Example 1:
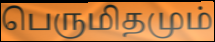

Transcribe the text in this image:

பெருமிதமும்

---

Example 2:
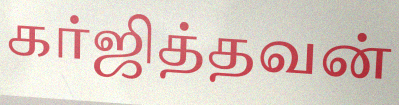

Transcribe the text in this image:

கர்ஜித்தவன்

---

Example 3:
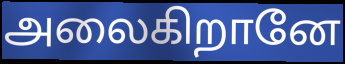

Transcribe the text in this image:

அலைகிறானே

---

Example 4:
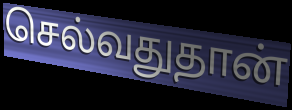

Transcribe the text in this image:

செல்வதுதான்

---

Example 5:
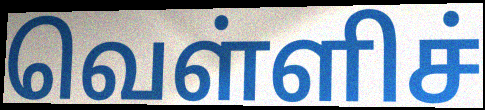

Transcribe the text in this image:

வெள்ளிச்